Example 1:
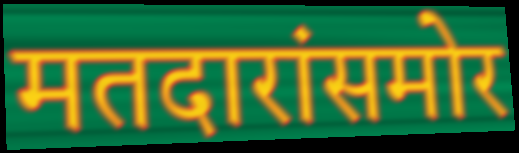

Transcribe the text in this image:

मतदारांसमोर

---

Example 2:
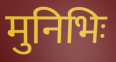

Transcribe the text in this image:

मुनिभिः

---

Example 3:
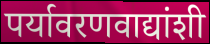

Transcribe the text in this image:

पर्यावरणवाद्यांशी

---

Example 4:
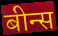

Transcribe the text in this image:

बीन्स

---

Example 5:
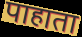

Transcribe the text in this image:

पाहाता